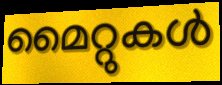
മൈറ്റുകൾ